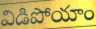
విడిపోయాం